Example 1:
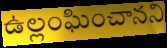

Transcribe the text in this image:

ఉల్లంఘించానని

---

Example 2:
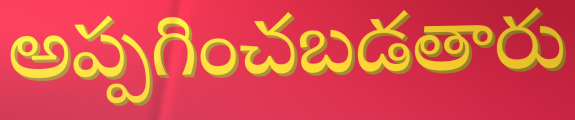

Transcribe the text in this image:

అప్పగించబడతారు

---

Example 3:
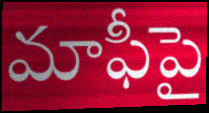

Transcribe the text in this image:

మాఫీపై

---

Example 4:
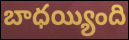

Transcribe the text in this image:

బాధయ్యింది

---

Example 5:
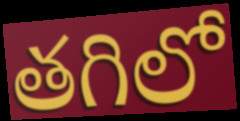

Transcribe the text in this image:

తగిలో